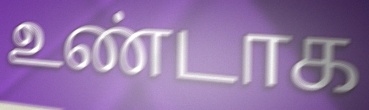
உண்டாக